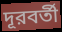
দূরবর্তী